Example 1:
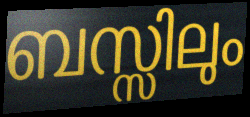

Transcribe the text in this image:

ബസ്സിലും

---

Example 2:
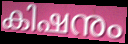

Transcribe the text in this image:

കിഷനും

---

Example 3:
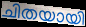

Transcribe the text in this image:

ചിതയായി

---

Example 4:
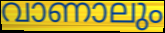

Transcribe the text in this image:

വാണാലും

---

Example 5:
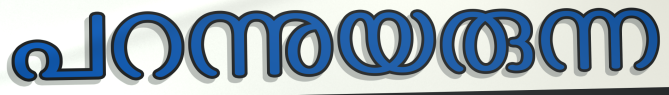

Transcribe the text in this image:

പറന്നുയരുന്ന